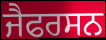
ਜੈਫਰਸਨ